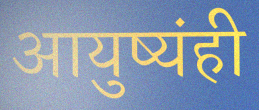
आयुष्यंही